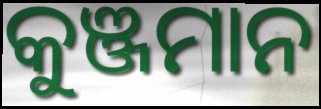
କୁଞ୍ଜମାନ